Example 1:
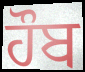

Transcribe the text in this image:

ਹੌਬ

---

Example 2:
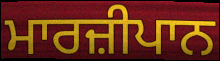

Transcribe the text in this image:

ਮਾਰਜ਼ੀਪਾਨ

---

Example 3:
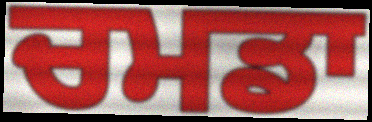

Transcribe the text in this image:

ਚਮਡਾ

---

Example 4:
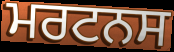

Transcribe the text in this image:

ਮਰਟਨਸ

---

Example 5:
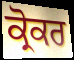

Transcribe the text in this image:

ਕ੍ਰੋਕਰ